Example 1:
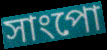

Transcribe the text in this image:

সাংপো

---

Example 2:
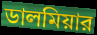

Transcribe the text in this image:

ডালমিয়ার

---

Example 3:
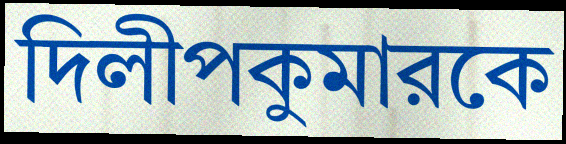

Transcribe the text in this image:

দিলীপকুমারকে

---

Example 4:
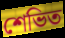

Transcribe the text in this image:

শেভিত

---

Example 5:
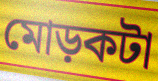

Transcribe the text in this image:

মোড়কটা